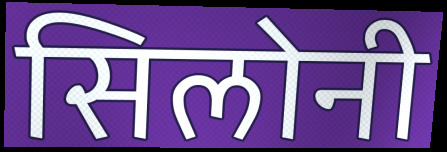
सिलोनी